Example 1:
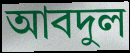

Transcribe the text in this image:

আবদুল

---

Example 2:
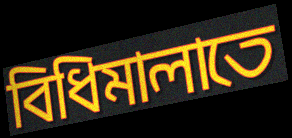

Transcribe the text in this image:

বিধিমালাতে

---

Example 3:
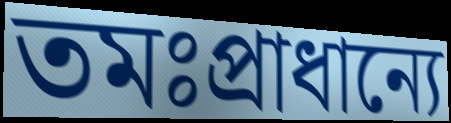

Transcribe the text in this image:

তমঃপ্রাধান্যে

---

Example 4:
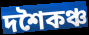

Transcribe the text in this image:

দশৈকঞ্চ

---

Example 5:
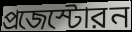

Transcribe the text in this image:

প্রজেস্টোরন